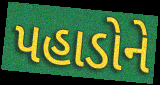
પહાડોને